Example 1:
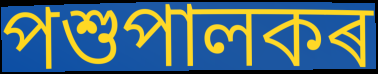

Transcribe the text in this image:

পশুপালকৰ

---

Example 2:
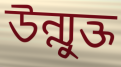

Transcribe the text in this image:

উন্মুক্ত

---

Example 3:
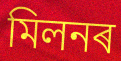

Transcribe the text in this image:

মিলনৰ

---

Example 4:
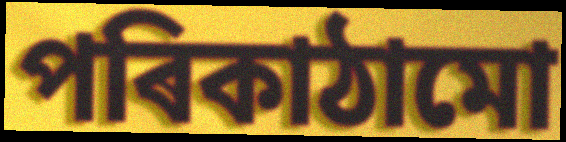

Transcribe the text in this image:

পৰিকাঠামো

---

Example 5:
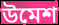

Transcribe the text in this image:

উমেশ